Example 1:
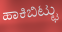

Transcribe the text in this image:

ಹಾಕಿಬಿಟ್ಟು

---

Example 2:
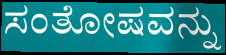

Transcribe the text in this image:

ಸಂತೋಷವನ್ನು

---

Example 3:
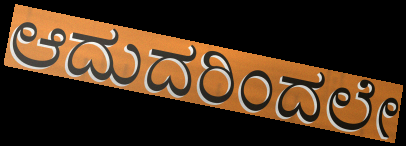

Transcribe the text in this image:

ಆದುದರಿಂದಲೇ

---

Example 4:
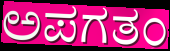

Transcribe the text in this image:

ಅಪಗತಂ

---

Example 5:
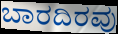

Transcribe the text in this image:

ಬಾರದಿರವು